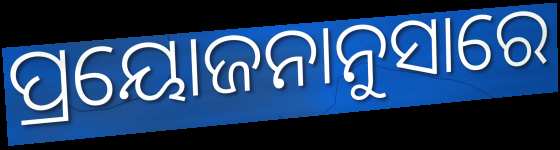
ପ୍ରୟୋଜନାନୁସାରେ